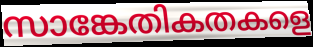
സാങ്കേതികതകളെ